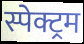
स्पेक्ट्रम